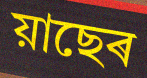
য়াছেৰ